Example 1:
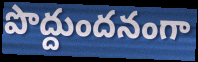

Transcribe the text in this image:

పొద్దుందనంగా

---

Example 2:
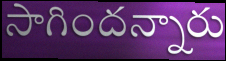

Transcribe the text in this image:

సాగిందన్నారు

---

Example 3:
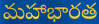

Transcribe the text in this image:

మహాభారత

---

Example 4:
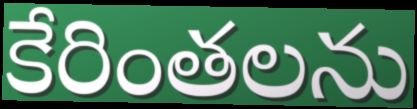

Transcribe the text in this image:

కేరింతలను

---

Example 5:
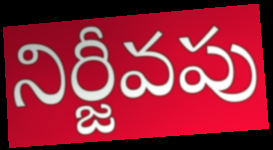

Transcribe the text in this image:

నిర్జీవపు